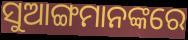
ସୁଆଙ୍ଗମାନଙ୍କରେ